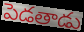
పెడతాడు